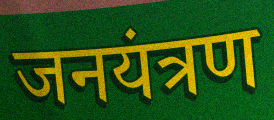
जनयंत्रण